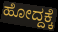
ಹೋದ್ದಕ್ಕೆ